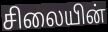
சிலையின்